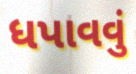
ધપાવવું